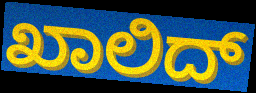
ಖಾಲಿದ್